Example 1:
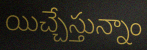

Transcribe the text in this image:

యిచ్చేస్తున్నాం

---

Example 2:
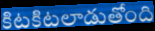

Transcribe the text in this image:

కిటకిటలాడుతోంది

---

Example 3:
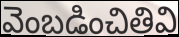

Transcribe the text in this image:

వెంబడించితివి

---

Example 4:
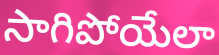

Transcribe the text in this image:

సాగిపోయేలా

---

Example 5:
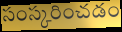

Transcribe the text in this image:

సంస్కరించడం